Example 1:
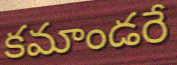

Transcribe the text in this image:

కమాండరే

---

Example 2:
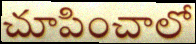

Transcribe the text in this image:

చూపించాలో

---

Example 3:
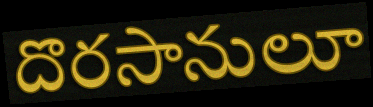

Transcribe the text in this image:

దొరసానులూ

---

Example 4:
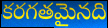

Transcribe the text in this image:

కరగతమైనది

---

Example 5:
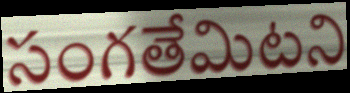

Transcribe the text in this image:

సంగతేమిటని